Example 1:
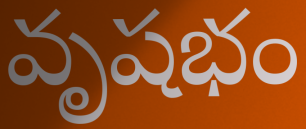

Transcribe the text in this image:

వృషభం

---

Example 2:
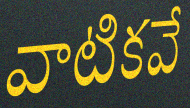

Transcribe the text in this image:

వాటికవే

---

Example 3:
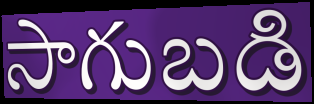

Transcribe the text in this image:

సాగుబడి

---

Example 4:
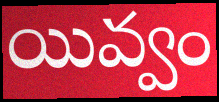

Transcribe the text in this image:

యివ్వం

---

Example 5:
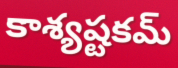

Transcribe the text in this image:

కాశ్యష్టకమ్